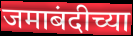
जमाबंदीच्या